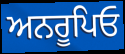
ਅਨਰੂਪਿਓ